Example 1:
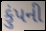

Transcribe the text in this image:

કુંપની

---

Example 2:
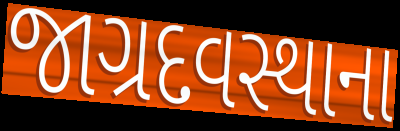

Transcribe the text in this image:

જાગ્રદવસ્થાના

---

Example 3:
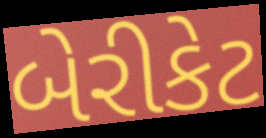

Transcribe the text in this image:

બેરીકેટ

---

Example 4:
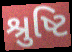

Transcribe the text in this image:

શ્રુષ્ટિ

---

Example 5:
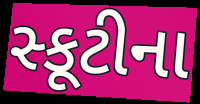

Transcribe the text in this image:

સ્કૂટીના